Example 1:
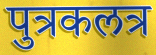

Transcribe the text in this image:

पुत्रकलत्र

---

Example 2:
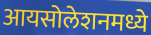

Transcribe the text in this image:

आयसोलेशनमध्ये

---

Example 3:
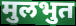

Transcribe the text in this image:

मुलभुत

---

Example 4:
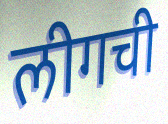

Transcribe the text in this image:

लीगची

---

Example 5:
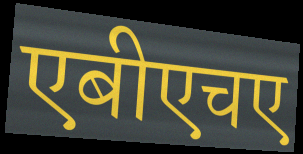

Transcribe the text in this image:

एबीएचए